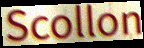
Scollon